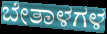
ಬೇತಾಳಗಳ